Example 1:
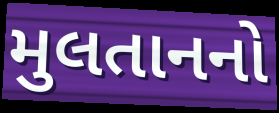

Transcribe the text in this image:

મુલતાનનો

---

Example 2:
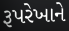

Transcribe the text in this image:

રૂપરેખાને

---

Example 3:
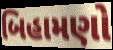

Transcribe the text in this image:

બિહામણો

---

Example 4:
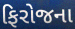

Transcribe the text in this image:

ફિરોજના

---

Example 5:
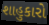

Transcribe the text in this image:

શાહુકારો